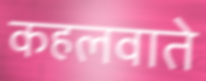
कहलवाते